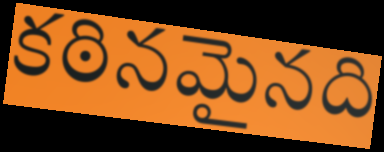
కఠినమైనది